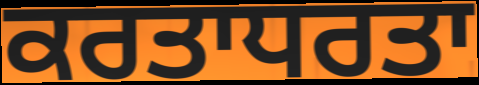
ਕਰਤਾਧਰਤਾ